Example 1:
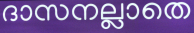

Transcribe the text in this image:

ദാസനല്ലാതെ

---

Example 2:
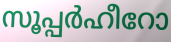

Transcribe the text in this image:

സൂപ്പർഹീറോ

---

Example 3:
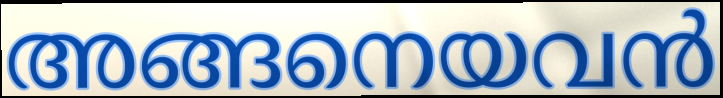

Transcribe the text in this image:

അങ്ങനെയവൻ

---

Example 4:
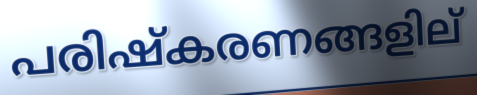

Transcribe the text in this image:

പരിഷ്കരണങ്ങളില്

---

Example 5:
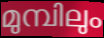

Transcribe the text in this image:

മുമ്പിലും